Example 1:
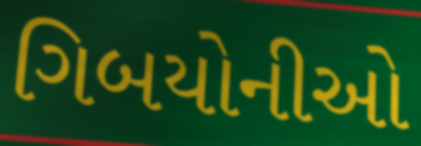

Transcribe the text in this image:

ગિબયોનીઓ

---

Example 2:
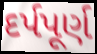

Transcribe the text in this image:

દર્પપૂર્ણ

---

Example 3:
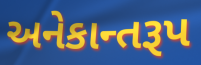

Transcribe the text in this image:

અનેકાન્તરૂપ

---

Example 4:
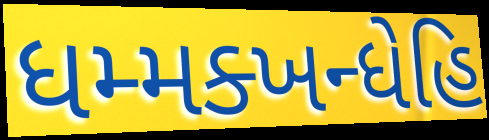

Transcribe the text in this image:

ધમ્મક્ખન્ધેહિ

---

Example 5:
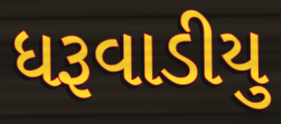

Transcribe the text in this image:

ધરૂવાડીયુ